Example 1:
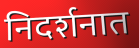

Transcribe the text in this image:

निदर्शनात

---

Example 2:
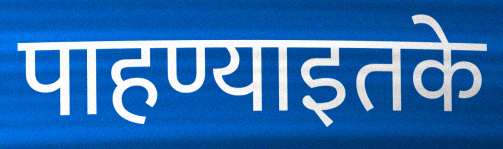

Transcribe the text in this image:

पाहण्याइतके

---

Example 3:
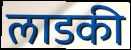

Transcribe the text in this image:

लाडकी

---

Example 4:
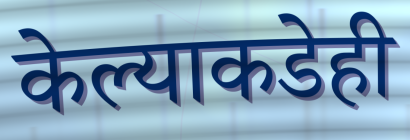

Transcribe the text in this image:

केल्याकडेही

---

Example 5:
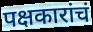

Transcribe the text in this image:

पक्षकारांचं